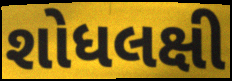
શોધલક્ષી